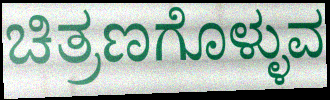
ಚಿತ್ರಣಗೊಳ್ಳುವ